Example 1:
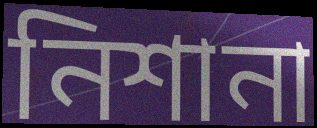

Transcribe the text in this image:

নিশানা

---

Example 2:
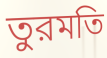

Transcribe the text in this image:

তুরমতি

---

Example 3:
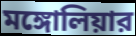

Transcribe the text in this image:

মঙ্গোলিয়ার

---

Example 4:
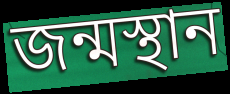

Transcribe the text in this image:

জন্মস্থান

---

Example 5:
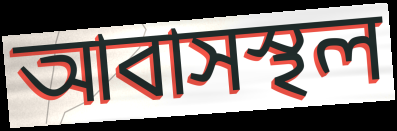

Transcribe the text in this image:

আবাসস্থল